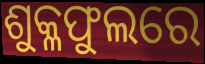
ଶୁକ୍ଳଫୁଲରେ